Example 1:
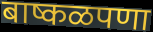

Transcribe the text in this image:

बाष्कळपणा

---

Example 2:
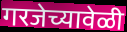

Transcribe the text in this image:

गरजेच्यावेळी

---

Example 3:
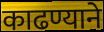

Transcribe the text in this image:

काढण्याने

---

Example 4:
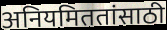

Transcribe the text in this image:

अनियमिततांसाठी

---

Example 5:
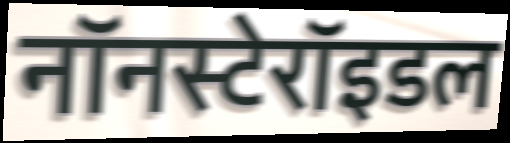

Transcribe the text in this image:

नॉनस्टेरॉइडल